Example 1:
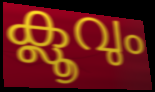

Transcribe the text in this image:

ക്ലൂവും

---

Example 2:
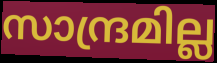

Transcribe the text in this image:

സാന്ദ്രമില്ല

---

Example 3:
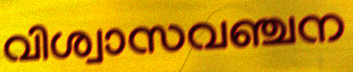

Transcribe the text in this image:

വിശ്വാസവഞ്ചന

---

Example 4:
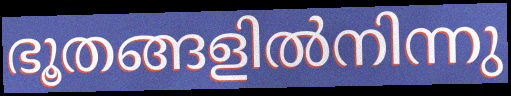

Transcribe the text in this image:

ഭൂതങ്ങളിൽനിന്നു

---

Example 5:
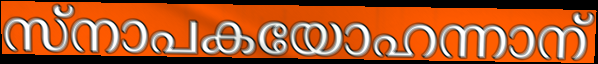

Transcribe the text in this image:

സ്നാപകയോഹന്നാന്